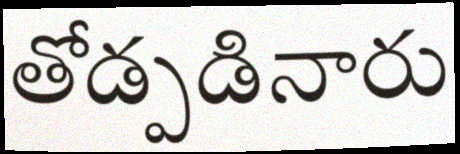
తోడ్పడినారు